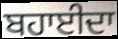
ਬਹਾਈਦਾ